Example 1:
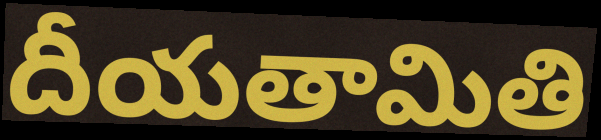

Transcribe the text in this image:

దీయతామితి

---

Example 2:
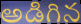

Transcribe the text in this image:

అడిగిన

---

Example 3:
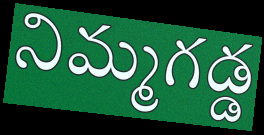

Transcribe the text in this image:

నిమ్మగడ్డ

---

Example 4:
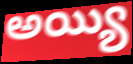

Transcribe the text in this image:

అయ్యి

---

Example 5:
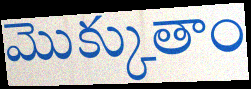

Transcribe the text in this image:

మొక్కుతాం